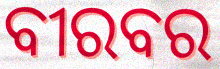
ବୀରବର